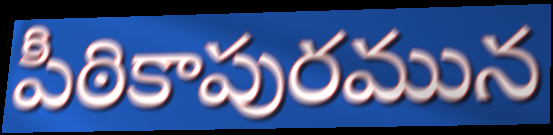
పీఠికాపురమున